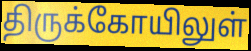
திருக்கோயிலுள்